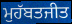
ਮੁਹੱਬਤਜੀਤ